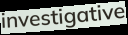
investigative